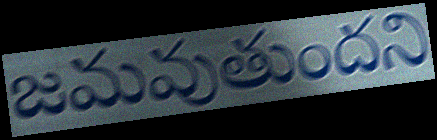
జమవుతుందని